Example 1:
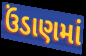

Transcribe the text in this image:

ઉંડાણમાં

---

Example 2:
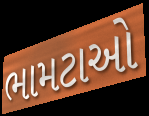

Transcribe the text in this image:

ભામટાઓ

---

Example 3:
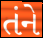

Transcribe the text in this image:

તંને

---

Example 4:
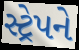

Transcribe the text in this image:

સ્ટ્રેપને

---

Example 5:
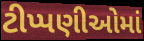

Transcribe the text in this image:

ટીપ્પણીઓમાં